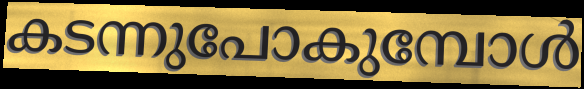
കടന്നുപോകുമ്പോൾ